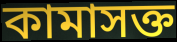
কামাসক্ত